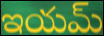
ఇయమ్